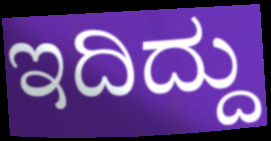
ಇದಿದ್ದು